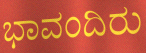
ಭಾವಂದಿರು